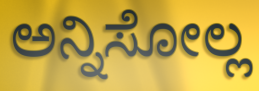
ಅನ್ನಿಸೋಲ್ಲ